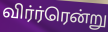
விர்ர்ரென்று